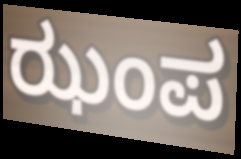
ಝಂಪ